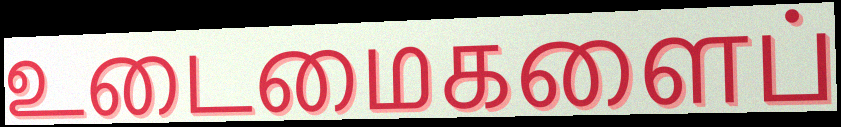
உடைமைகளைப்